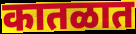
कातळात